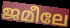
ജമീലേ